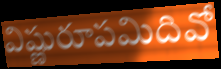
విష్ణురూపమిదివో